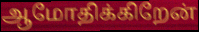
ஆமோதிக்கிறேன்